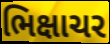
ભિક્ષાચર